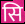
सि